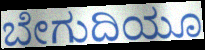
ಬೇಗುದಿಯೂ